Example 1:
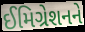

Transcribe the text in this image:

ઈમિગ્રેશનને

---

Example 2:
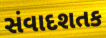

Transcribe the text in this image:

સંવાદશતક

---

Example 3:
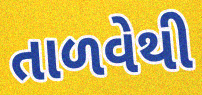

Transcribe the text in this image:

તાળવેથી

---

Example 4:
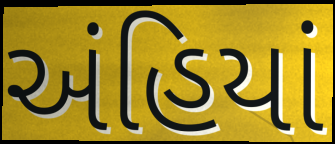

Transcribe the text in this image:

અંહિયાં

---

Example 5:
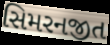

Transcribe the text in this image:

સિમરનજીત